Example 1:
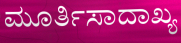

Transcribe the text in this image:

ಮೂರ್ತಿಸಾದಾಖ್ಯ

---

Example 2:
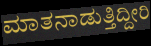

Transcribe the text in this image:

ಮಾತನಾಡುತ್ತಿದ್ದೀರಿ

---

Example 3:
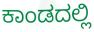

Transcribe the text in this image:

ಕಾಂಡದಲ್ಲಿ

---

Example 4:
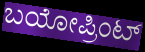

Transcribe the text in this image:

ಬಯೋಪ್ರಿಂಟ್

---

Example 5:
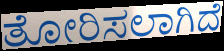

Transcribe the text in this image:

ತೋರಿಸಲಾಗಿದೆ